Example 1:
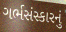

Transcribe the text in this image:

ગર્ભસંસ્કારનું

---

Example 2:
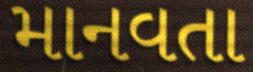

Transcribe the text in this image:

માનવતા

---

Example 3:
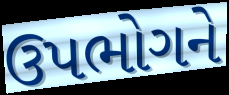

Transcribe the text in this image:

ઉપભોગને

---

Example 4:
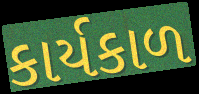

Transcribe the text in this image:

કાર્યકાળ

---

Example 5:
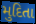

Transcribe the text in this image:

મુદિતા